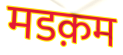
मडक़म